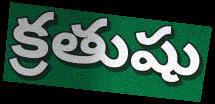
క్రతుషు